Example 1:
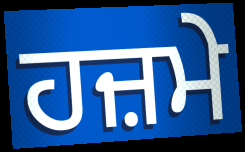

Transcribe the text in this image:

ਹਜ਼ਮੇ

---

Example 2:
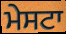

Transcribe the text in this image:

ਮੇਸਟਾ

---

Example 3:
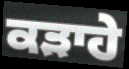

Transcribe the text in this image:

ਕੜਾਹੇ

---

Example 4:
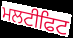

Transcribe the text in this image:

ਮਲਟੀਫਿਟ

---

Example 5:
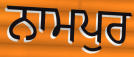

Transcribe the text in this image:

ਨਾਮਪੁਰ